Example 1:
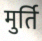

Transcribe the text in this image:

मुर्ति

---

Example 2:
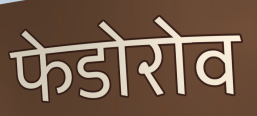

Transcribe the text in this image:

फेडोरोव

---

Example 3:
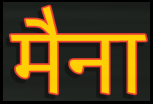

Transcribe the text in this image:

मैना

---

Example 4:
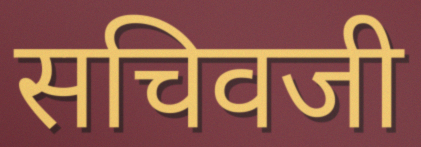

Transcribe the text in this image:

सचिवजी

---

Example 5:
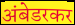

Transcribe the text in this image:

अंबेडरकर